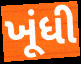
ખૂંધી